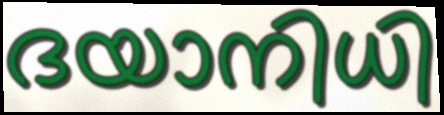
ദയാനിധി